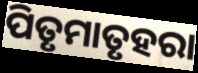
ପିତୃମାତୃହରା